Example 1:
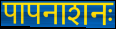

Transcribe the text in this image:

पापनाशनः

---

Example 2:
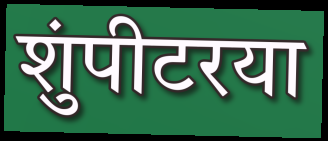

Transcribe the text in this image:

शुंपीटरया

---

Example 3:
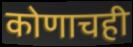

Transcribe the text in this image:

कोणाचही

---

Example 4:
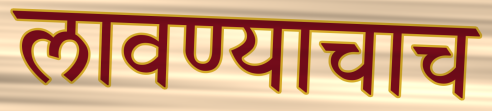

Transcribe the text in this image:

लावण्याचाच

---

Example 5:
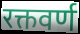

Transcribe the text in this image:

रक्तवर्ण